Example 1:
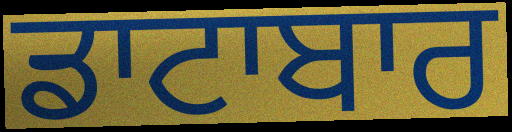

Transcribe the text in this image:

ਡਾਟਾਬਾਰ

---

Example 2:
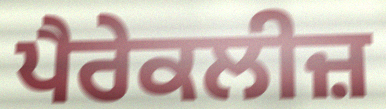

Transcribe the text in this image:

ਪੈਰੇਕਲੀਜ਼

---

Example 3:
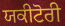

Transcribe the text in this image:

ਯਕੀਟੋਰੀ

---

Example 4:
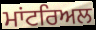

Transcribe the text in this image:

ਮਾਂਟਰਿਅਲ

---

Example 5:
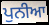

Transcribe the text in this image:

ਪੁਨੀਆ